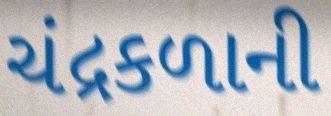
ચંદ્રકળાની